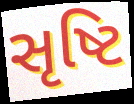
સૃષ્ટિ